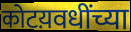
कोटय़वधींच्या